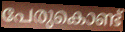
പേരുകൊണ്ട്